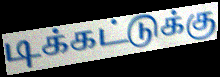
டிக்கட்டுக்கு